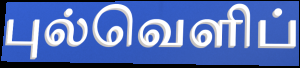
புல்வெளிப்